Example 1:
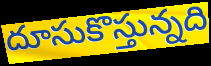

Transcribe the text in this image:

దూసుకొస్తున్నది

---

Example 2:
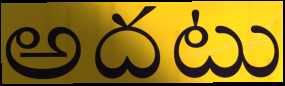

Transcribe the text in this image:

అదటు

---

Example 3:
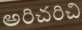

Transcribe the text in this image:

అరిచరిచి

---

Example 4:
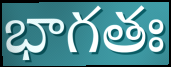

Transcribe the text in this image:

భాగతః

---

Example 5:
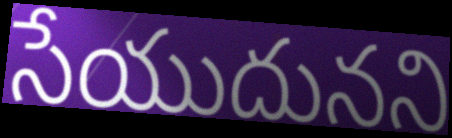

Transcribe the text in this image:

సేయుదునని